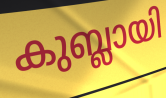
കുബ്ലായി